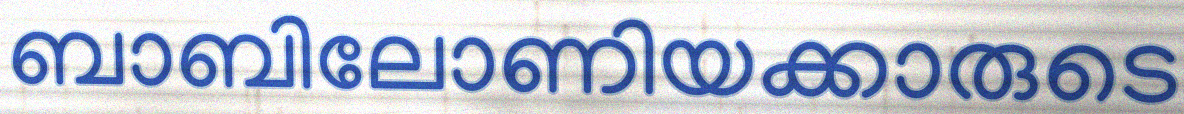
ബാബിലോണിയക്കാരുടെ